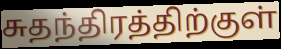
சுதந்திரத்திற்குள்